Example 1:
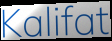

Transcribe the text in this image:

Kalifat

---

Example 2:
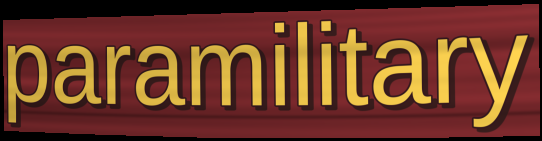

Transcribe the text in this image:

paramilitary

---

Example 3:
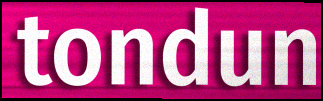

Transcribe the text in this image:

tondun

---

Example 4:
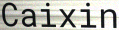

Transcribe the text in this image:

Caixin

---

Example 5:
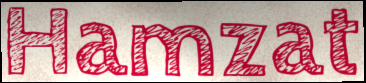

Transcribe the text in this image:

Hamzat